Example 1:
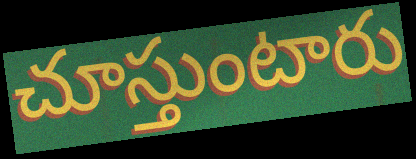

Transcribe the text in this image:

చూస్తుంటారు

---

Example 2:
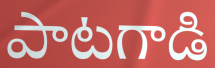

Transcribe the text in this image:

పాటగాడి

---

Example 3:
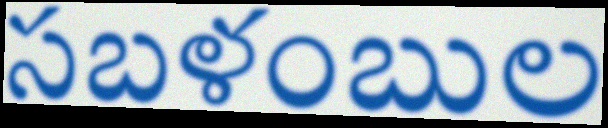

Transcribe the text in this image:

సబళంబుల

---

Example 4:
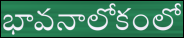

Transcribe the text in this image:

భావనాలోకంలో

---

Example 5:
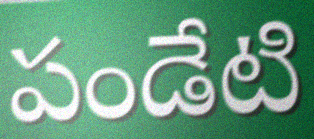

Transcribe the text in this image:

పండేటి